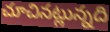
చూచినట్లున్నది